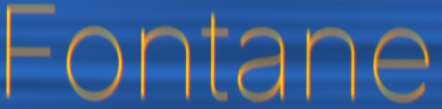
Fontane